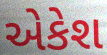
એકેશ